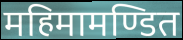
महिमामण्डित